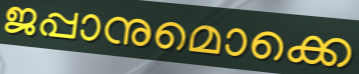
ജപ്പാനുമൊക്കെ